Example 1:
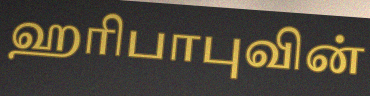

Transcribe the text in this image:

ஹரிபாபுவின்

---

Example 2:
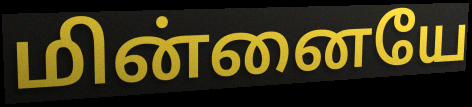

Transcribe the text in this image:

மின்னையே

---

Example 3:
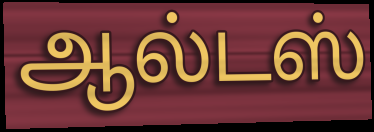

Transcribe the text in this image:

ஆல்டஸ்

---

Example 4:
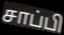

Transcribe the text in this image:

சாப்பி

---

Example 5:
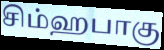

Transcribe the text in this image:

சிம்ஹபாகு